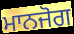
ਮਾਨਜੋਗ